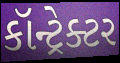
કૉન્ટ્રેક્ટર